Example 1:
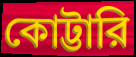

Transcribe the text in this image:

কোট্টারি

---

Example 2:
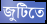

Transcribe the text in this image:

জুটিতে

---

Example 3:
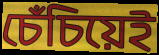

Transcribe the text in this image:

চেঁচিয়েই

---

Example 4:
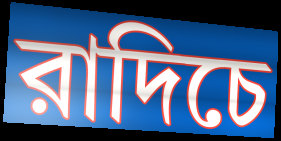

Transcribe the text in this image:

রাদিচে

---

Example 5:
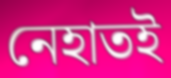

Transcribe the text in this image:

নেহাতই